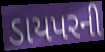
ડાયપરની